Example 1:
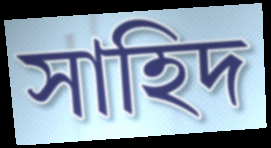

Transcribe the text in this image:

সাহিদ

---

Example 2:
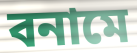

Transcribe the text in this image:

বনামে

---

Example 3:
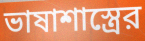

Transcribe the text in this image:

ভাষাশাস্ত্রের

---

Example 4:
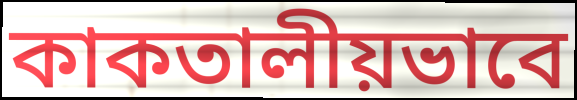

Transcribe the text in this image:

কাকতালীয়ভাবে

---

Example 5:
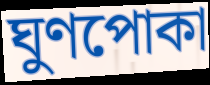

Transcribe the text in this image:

ঘুণপোকা